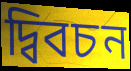
দ্বিবচন